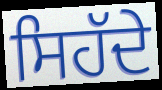
ਸਿਹੱਦੇ